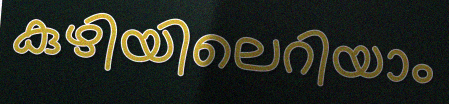
കുഴിയിലെറിയാം